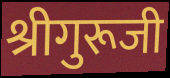
श्रीगुरूजी